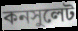
কনসুলেট